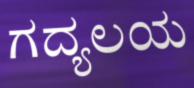
ಗದ್ಯಲಯ